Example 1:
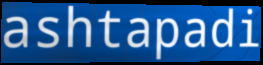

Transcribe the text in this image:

ashtapadi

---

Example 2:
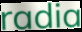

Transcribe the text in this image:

radia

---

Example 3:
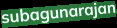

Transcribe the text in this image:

subagunarajan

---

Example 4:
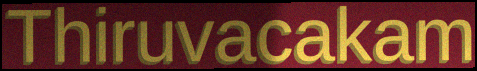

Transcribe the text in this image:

Thiruvacakam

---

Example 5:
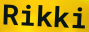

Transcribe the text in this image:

Rikki